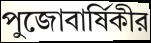
পুজোবার্ষিকীর